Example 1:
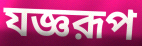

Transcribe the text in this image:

যজ্ঞরূপ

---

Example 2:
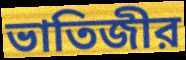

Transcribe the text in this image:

ভাতিজীর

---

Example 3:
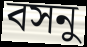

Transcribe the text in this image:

বসনু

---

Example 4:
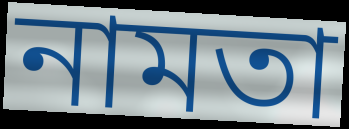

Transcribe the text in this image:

নামতা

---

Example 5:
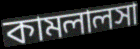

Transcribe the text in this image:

কামলালসা